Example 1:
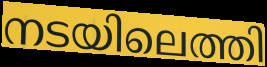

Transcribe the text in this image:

നടയിലെത്തി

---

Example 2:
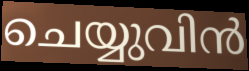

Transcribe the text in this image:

ചെയ്യുവിൻ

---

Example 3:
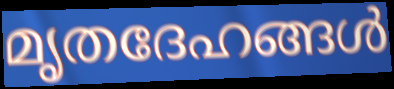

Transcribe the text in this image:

മൃതദേഹങ്ങൾ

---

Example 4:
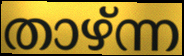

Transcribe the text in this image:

താഴ്ന്ന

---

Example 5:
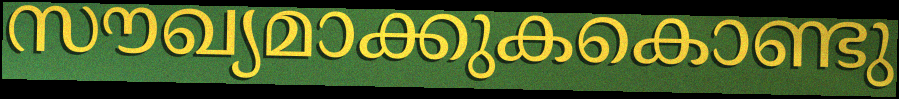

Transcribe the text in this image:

സൗഖ്യമാക്കുകകൊണ്ടു